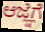
ಆಜ್ಞೆಗೆ